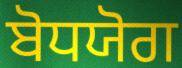
ਬੋਧਯੋਗ